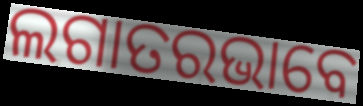
ଲଗାତରଭାବେ